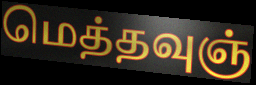
மெத்தவுஞ்